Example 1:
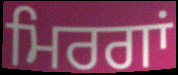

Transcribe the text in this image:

ਮਿਰਗਾਂ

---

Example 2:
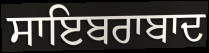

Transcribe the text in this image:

ਸਾਇਬਰਾਬਾਦ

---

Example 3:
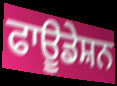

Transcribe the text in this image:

ਫਾਊਡੇਸ਼ਨ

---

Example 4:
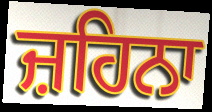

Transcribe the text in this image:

ਜ਼ਹਿਨਾ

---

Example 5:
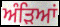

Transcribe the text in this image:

ਅੰੜਿਆਂ